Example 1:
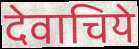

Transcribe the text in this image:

देवाचिये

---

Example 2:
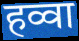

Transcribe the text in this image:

हव्वा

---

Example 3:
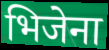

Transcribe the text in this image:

भिजेना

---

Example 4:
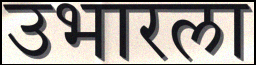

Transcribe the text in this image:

उभारला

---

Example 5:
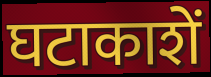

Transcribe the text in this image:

घटाकाशें